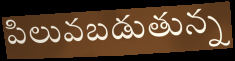
పిలువబడుతున్న